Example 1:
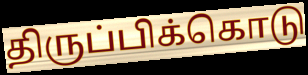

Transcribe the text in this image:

திருப்பிக்கொடு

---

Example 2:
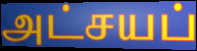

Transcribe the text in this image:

அட்சயப்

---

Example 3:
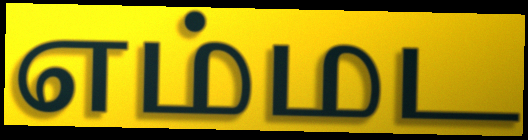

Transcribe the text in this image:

எம்மட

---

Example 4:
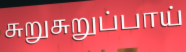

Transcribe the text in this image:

சுறுசுறுப்பாய்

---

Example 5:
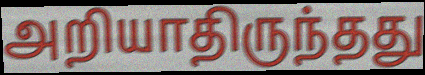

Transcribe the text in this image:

அறியாதிருந்தது